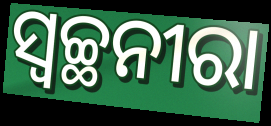
ସ୍ୱଚ୍ଛନୀରା